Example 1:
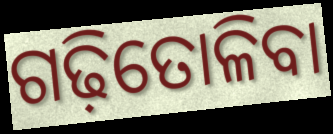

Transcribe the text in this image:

ଗଢ଼ିତୋଳିବା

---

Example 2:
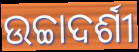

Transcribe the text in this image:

ଉଚ୍ଚାଦର୍ଶୀ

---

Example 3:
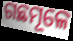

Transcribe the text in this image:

ଗଛମୂଳେ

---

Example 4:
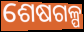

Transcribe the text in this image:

ଶେଷଗଳ୍ପ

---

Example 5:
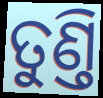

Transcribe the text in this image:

ତୁଣ୍ତି